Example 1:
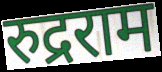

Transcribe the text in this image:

रुद्रराम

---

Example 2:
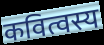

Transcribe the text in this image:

कवित्वस्य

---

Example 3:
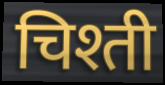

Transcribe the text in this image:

चिश्ती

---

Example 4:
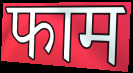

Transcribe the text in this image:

फाम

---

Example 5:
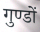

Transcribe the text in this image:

गुण्डों